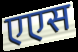
एएस